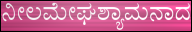
ನೀಲಮೇಘಶ್ಯಾಮನಾದ